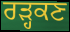
ਰੜ੍ਹਕਣ